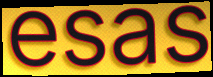
esas